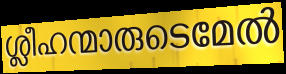
ശ്ലീഹന്മാരുടെമേൽ